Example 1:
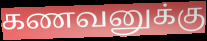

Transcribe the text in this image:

கணவனுக்கு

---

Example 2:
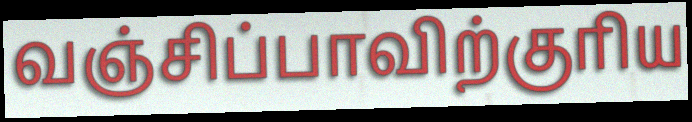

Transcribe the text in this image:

வஞ்சிப்பாவிற்குரிய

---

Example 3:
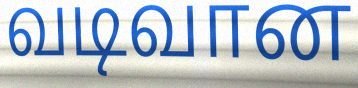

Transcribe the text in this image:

வடிவான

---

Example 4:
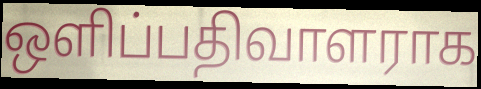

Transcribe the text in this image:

ஒளிப்பதிவாளராக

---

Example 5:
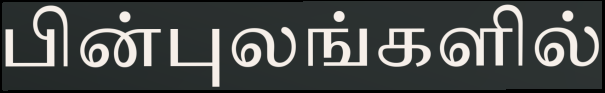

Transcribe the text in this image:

பின்புலங்களில்